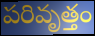
పరివృత్తం